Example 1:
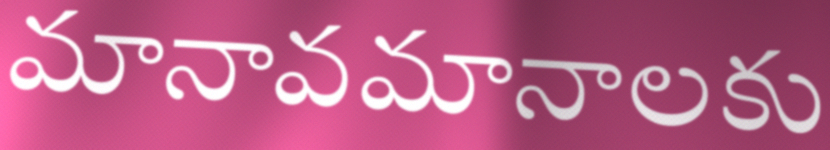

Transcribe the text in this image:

మానావమానాలకు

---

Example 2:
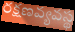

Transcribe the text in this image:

రక్షణవ్యవస్థ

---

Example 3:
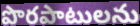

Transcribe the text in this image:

పొరపాటులను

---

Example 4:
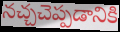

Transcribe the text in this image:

నచ్చచెప్పడానికి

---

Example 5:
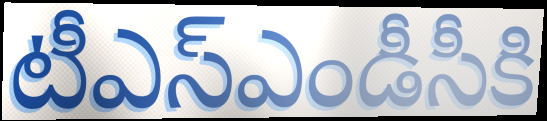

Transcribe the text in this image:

టీఎస్ఎండీసీకి